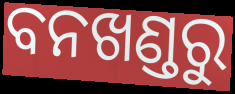
ବନଖଣ୍ଡରୁ